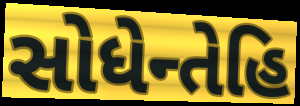
સોધેન્તેહિ